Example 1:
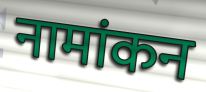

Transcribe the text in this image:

नामांकन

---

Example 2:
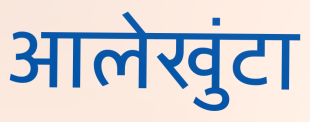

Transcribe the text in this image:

आलेखुंटा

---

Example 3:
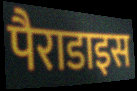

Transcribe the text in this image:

पैराडाइस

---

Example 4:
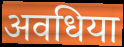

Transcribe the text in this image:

अवधिया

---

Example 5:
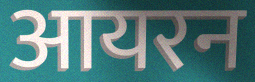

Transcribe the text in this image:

आयरन